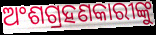
ଅଂଶଗ୍ରହଣକାରୀଙ୍କୁ